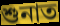
শুনাত